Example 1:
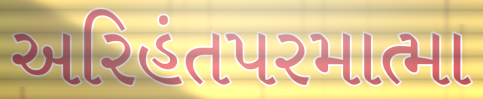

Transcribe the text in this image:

અરિહંતપરમાત્મા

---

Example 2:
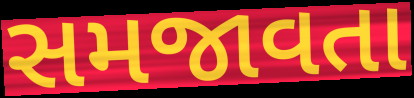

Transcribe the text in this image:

સમજાવતા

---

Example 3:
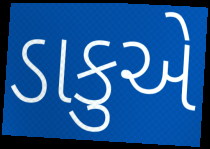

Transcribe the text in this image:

ડાકુએ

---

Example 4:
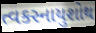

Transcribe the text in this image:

ત્વકસ્નાયુશોથ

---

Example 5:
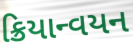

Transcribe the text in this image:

ક્રિયાન્વયન